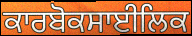
ਕਾਰਬੋਕਸਾਈਲਿਕ